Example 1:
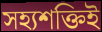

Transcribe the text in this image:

সহ্যশক্তিই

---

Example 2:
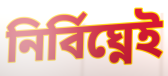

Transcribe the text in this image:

নির্বিঘ্নেই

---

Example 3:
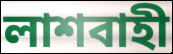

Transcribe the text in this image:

লাশবাহী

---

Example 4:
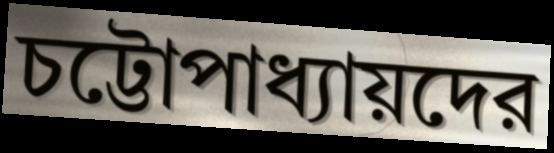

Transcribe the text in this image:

চট্টোপাধ্যায়দের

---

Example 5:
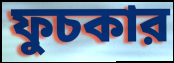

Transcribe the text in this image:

ফুচকার